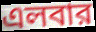
এলবার